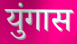
युंगास